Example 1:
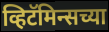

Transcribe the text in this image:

व्हिटॅमिन्सच्या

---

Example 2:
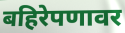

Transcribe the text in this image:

बहिरेपणावर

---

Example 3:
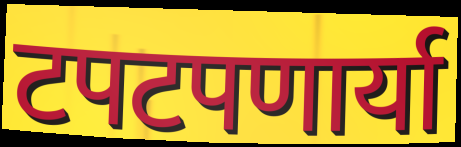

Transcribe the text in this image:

टपटपणार्या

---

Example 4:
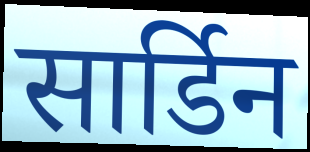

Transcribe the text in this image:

सार्डिन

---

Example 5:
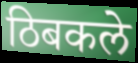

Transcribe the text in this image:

ठिबकले